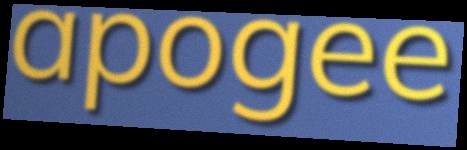
apogee